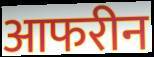
आफरीन